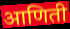
आणिती